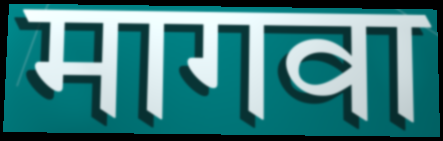
मागवा